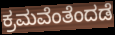
ಕ್ರಮವೆಂತೆಂದಡೆ